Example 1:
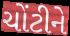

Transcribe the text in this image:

ચોંટીને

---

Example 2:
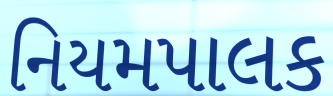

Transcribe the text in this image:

નિયમપાલક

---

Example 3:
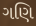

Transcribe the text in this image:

ગણિ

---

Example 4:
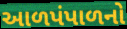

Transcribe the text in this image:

આળપંપાળનો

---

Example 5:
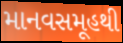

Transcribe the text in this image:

માનવસમૂહથી